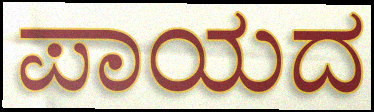
ಪಾಯದ